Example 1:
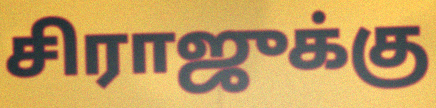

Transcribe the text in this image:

சிராஜுக்கு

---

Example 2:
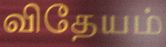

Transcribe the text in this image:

விதேயம்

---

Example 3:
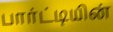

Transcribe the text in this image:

பார்ட்டியின்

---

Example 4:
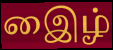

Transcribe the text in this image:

இைழ்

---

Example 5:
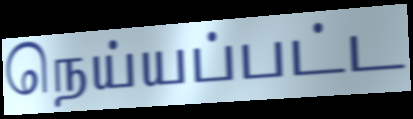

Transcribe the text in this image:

நெய்யப்பட்ட